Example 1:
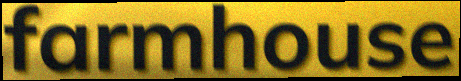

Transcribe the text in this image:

farmhouse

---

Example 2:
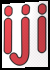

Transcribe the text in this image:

iji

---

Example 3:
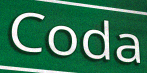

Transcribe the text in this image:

Coda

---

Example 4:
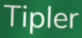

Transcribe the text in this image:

Tipler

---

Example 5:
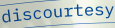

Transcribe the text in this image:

discourtesy